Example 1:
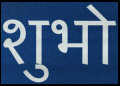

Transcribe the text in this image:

शुभो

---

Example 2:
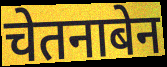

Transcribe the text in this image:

चेतनाबेन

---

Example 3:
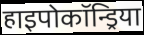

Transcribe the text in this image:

हाइपोकॉन्ड्रिया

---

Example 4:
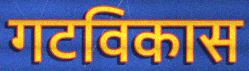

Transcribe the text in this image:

गटविकास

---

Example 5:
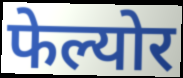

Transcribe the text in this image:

फेल्योर